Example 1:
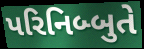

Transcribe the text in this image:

પરિનિબ્બુતે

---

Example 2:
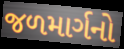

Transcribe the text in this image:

જળમાર્ગનો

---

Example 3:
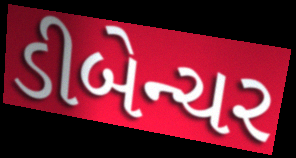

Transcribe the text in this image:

ડીબેન્ચર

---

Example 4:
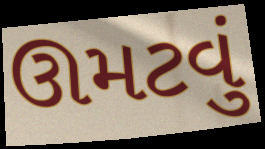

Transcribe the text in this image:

ઊમટવું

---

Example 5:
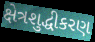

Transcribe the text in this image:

ક્ષેત્રશુદ્ધીકરણ